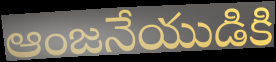
ఆంజనేయుడికి